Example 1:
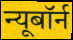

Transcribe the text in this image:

न्यूबॉर्न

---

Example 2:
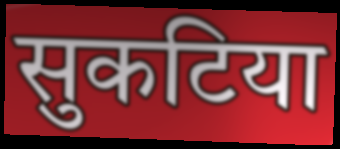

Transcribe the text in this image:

सुकटिया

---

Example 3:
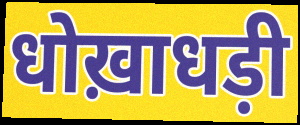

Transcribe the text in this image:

धोख़ाधड़ी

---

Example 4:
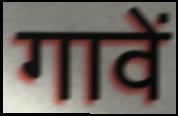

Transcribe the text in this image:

गावें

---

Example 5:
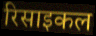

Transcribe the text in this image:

रिसाइकल